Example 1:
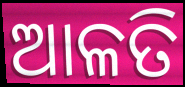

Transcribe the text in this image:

ଆଳତି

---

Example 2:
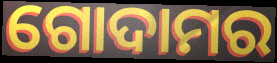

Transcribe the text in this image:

ଗୋଦାମର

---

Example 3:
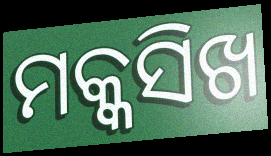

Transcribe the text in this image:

ମକ୍କସିଖ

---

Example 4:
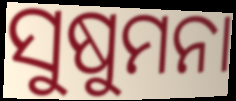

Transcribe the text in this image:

ସୁଷୁମନା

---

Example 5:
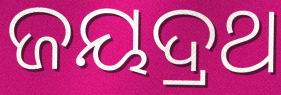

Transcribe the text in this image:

ଜୟଦ୍ରଥ